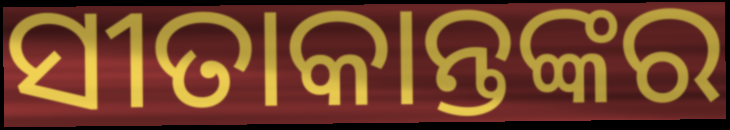
ସୀତାକାନ୍ତଙ୍କର